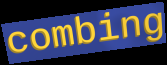
combing